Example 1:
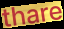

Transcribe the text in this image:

thare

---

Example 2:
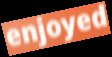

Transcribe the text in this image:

enjoyed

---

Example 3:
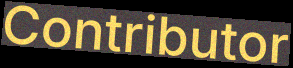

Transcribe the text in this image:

Contributor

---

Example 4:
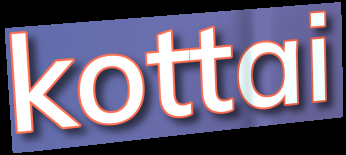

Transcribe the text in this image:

kottai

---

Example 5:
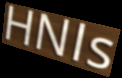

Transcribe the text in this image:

HNIs